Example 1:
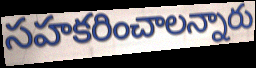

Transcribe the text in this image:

సహకరించాలన్నారు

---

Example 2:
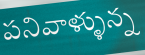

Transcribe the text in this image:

పనివాళ్ళున్న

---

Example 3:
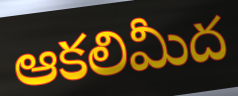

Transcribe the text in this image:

ఆకలిమీద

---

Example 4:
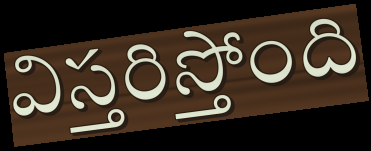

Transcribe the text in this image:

విస్తరిస్తోంది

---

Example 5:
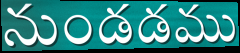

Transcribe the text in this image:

నుండడము